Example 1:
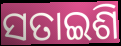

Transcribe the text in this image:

ସତାଇଶି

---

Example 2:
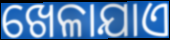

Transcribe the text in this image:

ଖେଳାଯାଏ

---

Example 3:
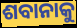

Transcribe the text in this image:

ଶବାନାକୁ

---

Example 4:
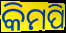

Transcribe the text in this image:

କିମପି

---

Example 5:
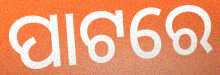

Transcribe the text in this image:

ପାଟରେ